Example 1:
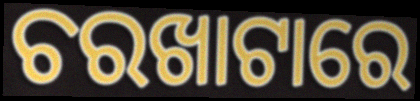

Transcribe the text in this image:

ଚରଖାଟାରେ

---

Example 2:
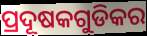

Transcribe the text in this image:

ପ୍ରଦୂଷକଗୁଡିକର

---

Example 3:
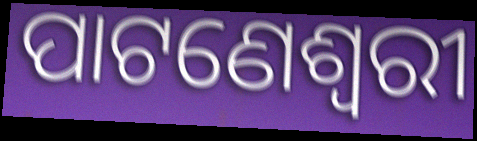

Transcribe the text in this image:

ପାଟଣେଶ୍ୱରୀ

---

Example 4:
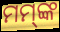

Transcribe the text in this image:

ମମ୍‌ଙ୍କ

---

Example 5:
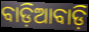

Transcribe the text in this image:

ବାଡ଼ିଆବାଡ଼ି